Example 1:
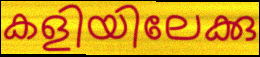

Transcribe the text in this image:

കളിയിലേക്കു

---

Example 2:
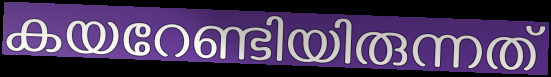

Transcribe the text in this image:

കയറേണ്ടിയിരുന്നത്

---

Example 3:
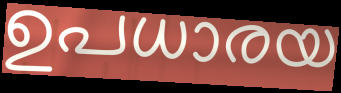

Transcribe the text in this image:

ഉപധാരയ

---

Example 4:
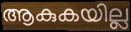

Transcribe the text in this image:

ആകുകയില്ല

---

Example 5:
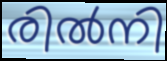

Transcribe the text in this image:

രിൽനി